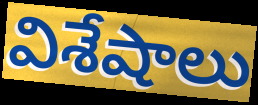
విశేషాలు